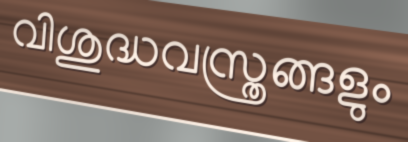
വിശുദ്ധവസ്ത്രങ്ങളും